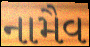
નામૈવ